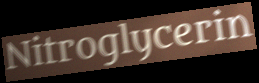
Nitroglycerin